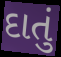
દાતું